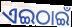
ଏଇଠାଇଁ